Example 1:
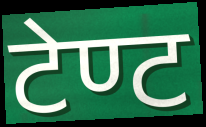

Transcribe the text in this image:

टेण्ट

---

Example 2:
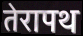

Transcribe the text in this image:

तेरापथ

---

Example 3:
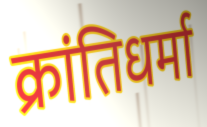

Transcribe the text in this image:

क्रांतिधर्मा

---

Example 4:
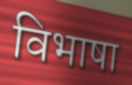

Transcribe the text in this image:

विभाषा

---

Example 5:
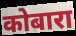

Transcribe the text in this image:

कोबारा